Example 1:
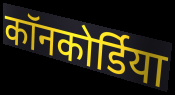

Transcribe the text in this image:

कॉनकोर्डिया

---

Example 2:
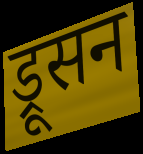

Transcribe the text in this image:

ड्रूसन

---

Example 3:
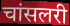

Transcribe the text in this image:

चांसलरी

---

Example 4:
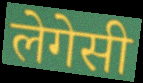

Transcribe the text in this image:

लेगेसी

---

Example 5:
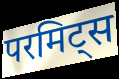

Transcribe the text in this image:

परमिट्स